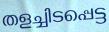
തളച്ചിടപ്പെട്ട